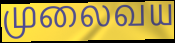
முலைவய